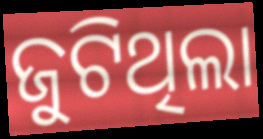
ଜୁଟିଥିଲା